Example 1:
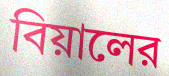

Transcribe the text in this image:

বিয়ালের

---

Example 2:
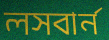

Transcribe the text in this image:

লসবার্ন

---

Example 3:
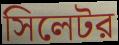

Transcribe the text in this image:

সিলেটর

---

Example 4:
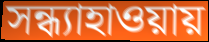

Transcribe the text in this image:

সন্ধ্যাহাওয়ায়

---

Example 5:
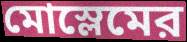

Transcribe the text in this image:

মোস্লেমের